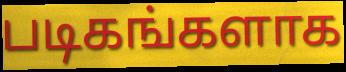
படிகங்களாக